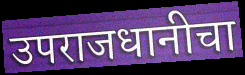
उपराजधानीचा